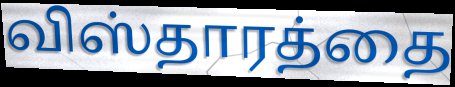
விஸ்தாரத்தை